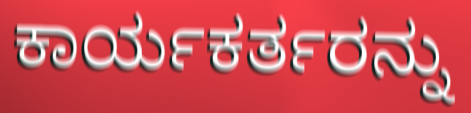
ಕಾರ್ಯಕರ್ತರನ್ನು